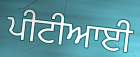
ਪੀਟੀਆਈ